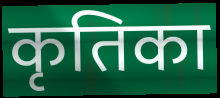
कृतिका